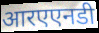
आरएएनडी